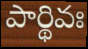
పార్థివః